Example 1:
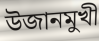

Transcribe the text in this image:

উজানমুখী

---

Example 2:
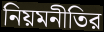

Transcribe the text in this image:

নিয়মনীতির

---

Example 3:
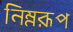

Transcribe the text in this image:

নিম্নরূপ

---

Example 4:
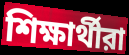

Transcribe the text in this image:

শিক্ষার্থীরা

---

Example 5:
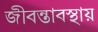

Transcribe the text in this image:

জীবন্তাবস্থায়